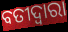
ବତୀଦ୍ୱାରା